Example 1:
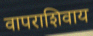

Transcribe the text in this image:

वापराशिवाय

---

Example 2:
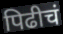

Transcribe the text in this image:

पिढीचं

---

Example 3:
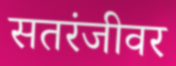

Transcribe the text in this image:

सतरंजीवर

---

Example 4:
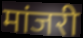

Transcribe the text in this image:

मांजरी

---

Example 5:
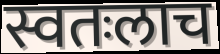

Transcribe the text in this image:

स्वतःलाच